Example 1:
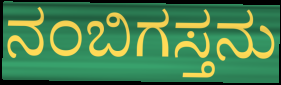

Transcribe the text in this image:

ನಂಬಿಗಸ್ತನು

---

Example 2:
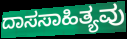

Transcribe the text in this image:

ದಾಸಸಾಹಿತ್ಯವು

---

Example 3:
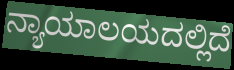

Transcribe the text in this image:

ನ್ಯಾಯಾಲಯದಲ್ಲಿದೆ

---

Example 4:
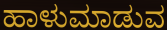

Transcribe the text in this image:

ಹಾಳುಮಾಡುವ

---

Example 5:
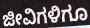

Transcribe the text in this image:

ಜೀವಿಗಳಿಗೂ